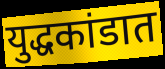
युद्धकांडात